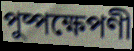
পুষ্পক্ষেপণী